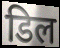
डिल